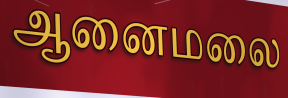
ஆனைமலை